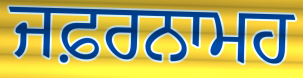
ਜਫ਼ਰਨਾਮਹ